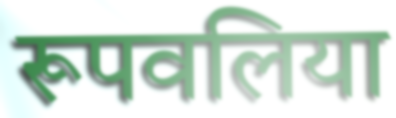
रूपवलिया